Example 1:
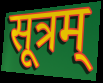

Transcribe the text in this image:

सूत्रम्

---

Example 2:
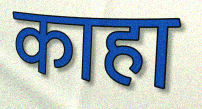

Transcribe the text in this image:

काहा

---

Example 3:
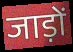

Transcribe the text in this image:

जाड़ों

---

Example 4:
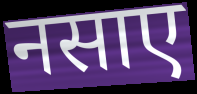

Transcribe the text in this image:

नसाए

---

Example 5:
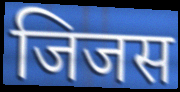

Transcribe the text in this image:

जिजस